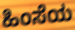
ಹಿಂಸೆಯ